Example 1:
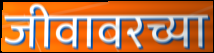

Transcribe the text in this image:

जीवावरच्या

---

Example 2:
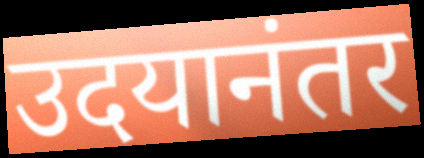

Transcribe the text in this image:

उदयानंतर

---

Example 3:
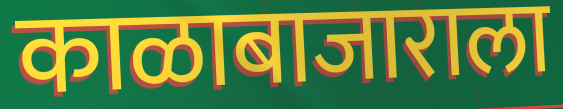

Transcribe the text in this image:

काळाबाजाराला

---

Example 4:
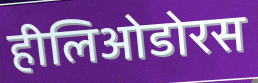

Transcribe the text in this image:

हीलिओडोरस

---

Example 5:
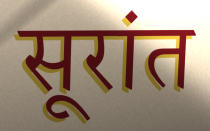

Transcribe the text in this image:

सूरांत